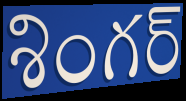
శింగర్